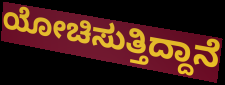
ಯೋಚಿಸುತ್ತಿದ್ದಾನೆ